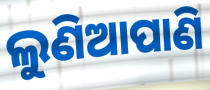
ଲୁଣିଆପାଣି